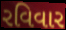
રવિવાર